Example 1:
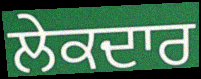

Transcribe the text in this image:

ਲੇਕਦਾਰ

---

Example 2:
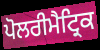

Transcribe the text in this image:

ਪੋਲਰੀਮੈਟ੍ਰਿਕ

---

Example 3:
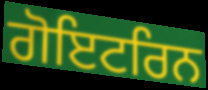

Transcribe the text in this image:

ਗੋਇਟਰਿਨ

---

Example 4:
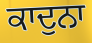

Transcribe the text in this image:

ਕਾਦੁਨਾ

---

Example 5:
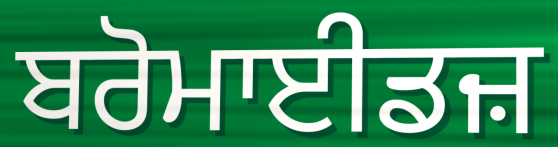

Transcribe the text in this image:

ਬਰੋਮਾਈਡਜ਼